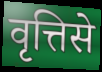
वृत्तिसे